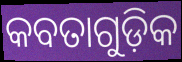
କବତାଗୁଡ଼ିକ